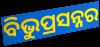
ବିଭୁପ୍ରସନ୍ନର